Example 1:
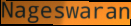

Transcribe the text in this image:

Nageswaran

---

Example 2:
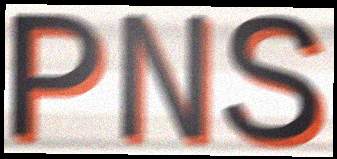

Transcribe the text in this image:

PNS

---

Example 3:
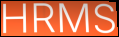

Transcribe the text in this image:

HRMS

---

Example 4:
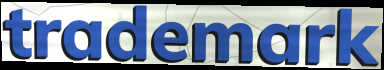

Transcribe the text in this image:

trademark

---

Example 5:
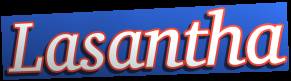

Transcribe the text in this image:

Lasantha